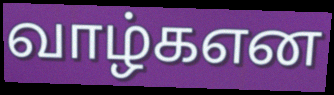
வாழ்கஎன